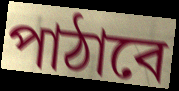
পাঠাবে